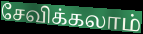
சேவிக்கலாம்